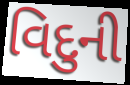
વિદુની